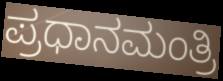
ಪ್ರಧಾನಮಂತ್ರಿ